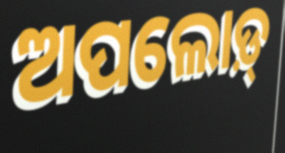
ଅପଲୋଡ଼୍